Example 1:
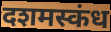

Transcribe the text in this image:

दशमस्कंध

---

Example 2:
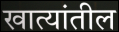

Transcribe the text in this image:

खात्यांतील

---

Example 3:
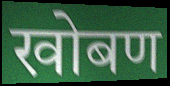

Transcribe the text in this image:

खोबण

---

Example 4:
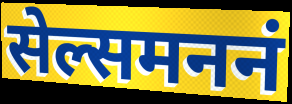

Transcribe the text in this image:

सेल्समननं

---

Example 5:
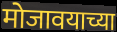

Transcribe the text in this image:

मोजावयाच्या